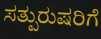
ಸತ್ಪುರುಷರಿಗೆ